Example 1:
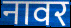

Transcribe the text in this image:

नावर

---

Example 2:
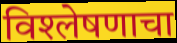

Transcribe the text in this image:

विश्‍लेषणाचा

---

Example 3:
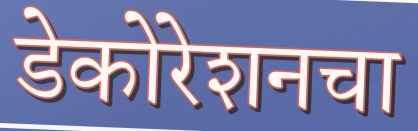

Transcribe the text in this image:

डेकोरेशनचा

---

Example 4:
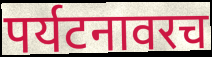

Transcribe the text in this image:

पर्यटनावरच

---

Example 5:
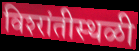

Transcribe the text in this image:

विश्रांतीस्थळी